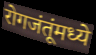
रोगजंतूंमध्ये